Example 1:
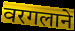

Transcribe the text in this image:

वरगलाने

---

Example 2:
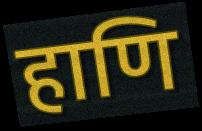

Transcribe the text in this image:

हाणि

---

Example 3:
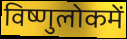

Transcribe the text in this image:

विष्णुलोकमें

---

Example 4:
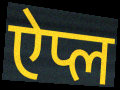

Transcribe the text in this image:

ऐप्ल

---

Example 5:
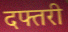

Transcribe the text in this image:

दफ्तरी